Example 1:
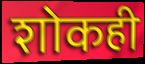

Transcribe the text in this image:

शोकही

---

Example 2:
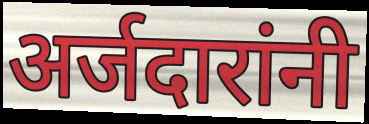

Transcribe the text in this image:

अर्जदारांनी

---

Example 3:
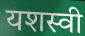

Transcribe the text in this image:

यशस्‍वी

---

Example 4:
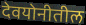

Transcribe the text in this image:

देवयोनीतील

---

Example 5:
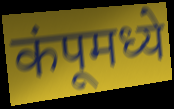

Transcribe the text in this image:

कंपूमध्ये